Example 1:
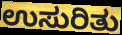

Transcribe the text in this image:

ಉಸುರಿತು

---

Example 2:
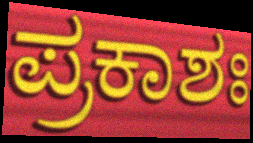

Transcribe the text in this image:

ಪ್ರಕಾಶಃ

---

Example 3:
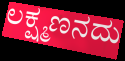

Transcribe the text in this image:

ಲಕ್ಷ್ಮಣನದು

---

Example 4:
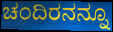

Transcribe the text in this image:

ಚಂದಿರನನ್ನೂ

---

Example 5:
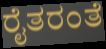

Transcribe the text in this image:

ರೈತರಂತೆ